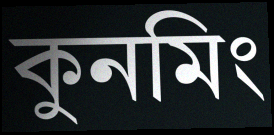
কুনমিং